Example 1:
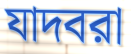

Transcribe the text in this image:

যাদবরা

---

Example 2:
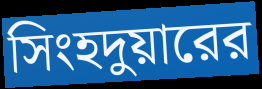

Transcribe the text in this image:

সিংহদুয়ারের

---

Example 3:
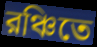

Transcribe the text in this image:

রঞ্চিতে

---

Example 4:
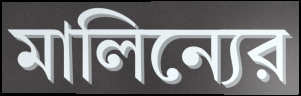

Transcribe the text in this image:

মালিন্যের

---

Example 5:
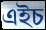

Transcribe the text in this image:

এইচ